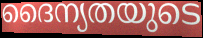
ദൈന്യതയുടെ